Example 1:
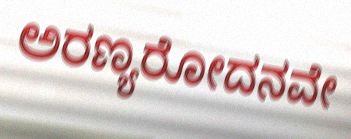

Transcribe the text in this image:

ಅರಣ್ಯರೋದನವೇ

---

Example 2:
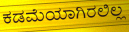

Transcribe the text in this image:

ಕಡಮೆಯಾಗಿರಲಿಲ್ಲ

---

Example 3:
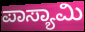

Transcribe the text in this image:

ಪಾಸ್ಯಾಮಿ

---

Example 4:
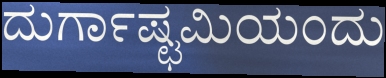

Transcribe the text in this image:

ದುರ್ಗಾಷ್ಟಮಿಯಂದು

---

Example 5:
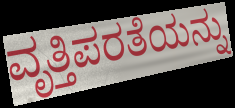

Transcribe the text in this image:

ವೃತ್ತಿಪರತೆಯನ್ನು